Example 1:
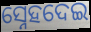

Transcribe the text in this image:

ସ୍ନେହଦେଇ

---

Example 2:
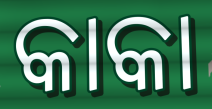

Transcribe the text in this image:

କାକା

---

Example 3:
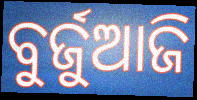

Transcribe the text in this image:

ବୁର୍ଜୁଆଜି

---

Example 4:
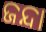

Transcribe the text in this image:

ଜନ୍ଦା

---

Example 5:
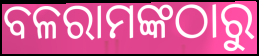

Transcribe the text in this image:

ବଳରାମଙ୍କଠାରୁ